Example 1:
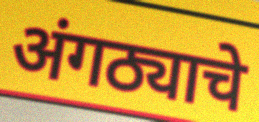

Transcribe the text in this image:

अंगठ्याचे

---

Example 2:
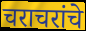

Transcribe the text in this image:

चराचरांचे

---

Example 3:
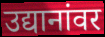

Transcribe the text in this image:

उद्यानांवर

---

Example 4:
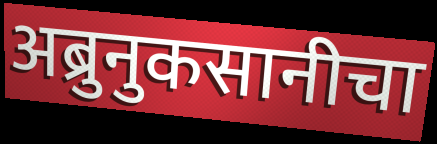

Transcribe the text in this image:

अब्रुनुकसानीचा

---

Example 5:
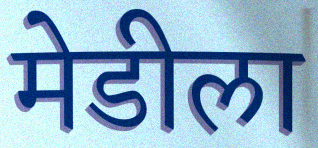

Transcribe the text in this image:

मेडीला